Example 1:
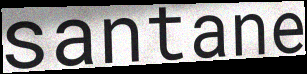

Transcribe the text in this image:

santane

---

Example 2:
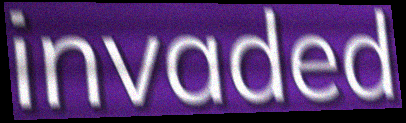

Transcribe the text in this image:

invaded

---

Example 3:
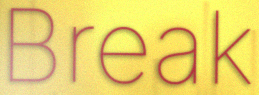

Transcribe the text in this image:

Break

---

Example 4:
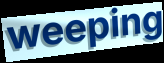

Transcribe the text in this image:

weeping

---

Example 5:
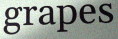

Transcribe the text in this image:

grapes